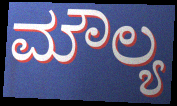
ಮೌಲ್ಯ